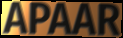
APAAR